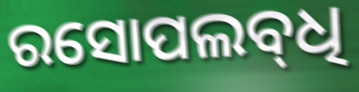
ରସୋପଲବ୍‌ଧି